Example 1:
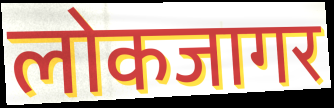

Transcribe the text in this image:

लोकजागर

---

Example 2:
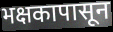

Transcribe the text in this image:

भक्षकापासून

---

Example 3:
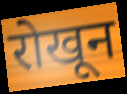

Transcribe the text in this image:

रोखून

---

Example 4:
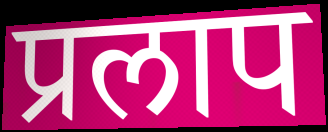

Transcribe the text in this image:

प्रलाप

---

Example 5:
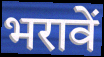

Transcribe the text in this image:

भरावें